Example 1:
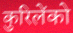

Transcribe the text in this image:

कुरिलेंको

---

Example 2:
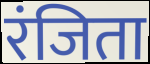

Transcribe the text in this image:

रंजिता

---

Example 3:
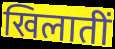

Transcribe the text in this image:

खिलातीं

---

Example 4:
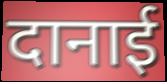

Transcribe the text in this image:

दानाई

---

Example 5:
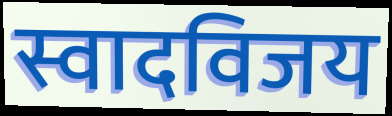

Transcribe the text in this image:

स्वादविजय